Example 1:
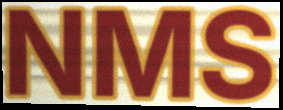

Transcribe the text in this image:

NMS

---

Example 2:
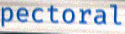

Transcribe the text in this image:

pectoral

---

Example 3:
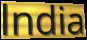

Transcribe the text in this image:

lndia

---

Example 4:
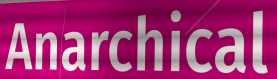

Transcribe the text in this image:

Anarchical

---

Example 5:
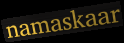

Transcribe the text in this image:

namaskaar